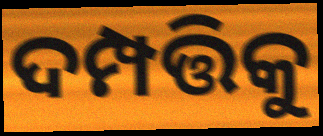
ଦମ୍ପତ୍ତିକୁ